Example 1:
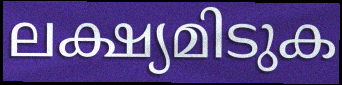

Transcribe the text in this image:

ലക്ഷ്യമിടുക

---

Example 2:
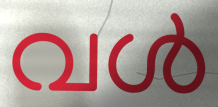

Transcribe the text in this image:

വൾ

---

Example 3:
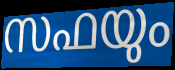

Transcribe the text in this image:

സഫയും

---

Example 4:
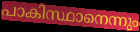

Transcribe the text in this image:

പാകിസ്ഥാനെന്നും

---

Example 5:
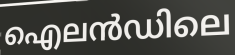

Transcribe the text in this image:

ഐലൻഡിലെ